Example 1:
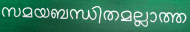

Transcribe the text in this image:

സമയബന്ധിതമല്ലാത്ത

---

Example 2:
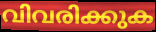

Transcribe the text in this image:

വിവരിക്കുക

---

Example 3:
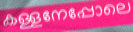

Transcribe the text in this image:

കള്ളനേപ്പോലെ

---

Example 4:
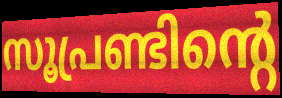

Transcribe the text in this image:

സൂപ്രണ്ടിന്റെ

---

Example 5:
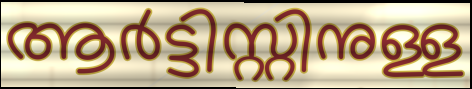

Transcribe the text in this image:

ആർട്ടിസ്റ്റിനുള്ള